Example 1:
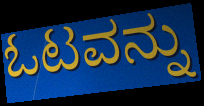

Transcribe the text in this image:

ಓಟವನ್ನು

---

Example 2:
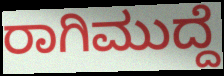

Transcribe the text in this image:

ರಾಗಿಮುದ್ದೆ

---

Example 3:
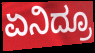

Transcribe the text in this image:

ಏನಿದ್ರೂ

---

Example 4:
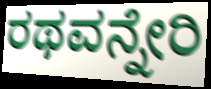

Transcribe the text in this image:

ರಥವನ್ನೇರಿ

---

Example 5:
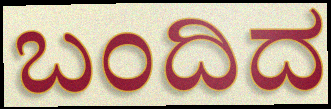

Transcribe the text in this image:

ಬಂದಿದ